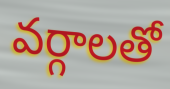
వర్గాలతో